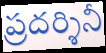
ప్రదర్శినీ